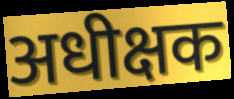
अधीक्षक